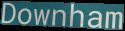
Downham